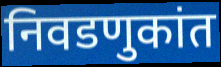
निवडणुकांत